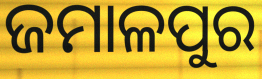
ଜମାଳପୁର